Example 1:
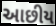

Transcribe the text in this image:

આછીય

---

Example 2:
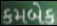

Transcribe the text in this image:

કમબેક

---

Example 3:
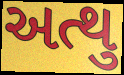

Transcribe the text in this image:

અત્થુ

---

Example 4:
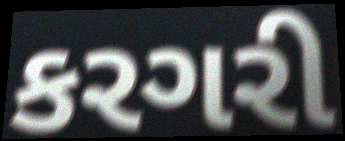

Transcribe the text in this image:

કરગરી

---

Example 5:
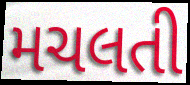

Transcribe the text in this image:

મચલતી